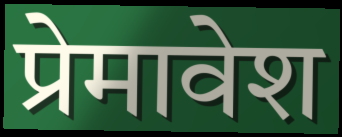
प्रेमावेश